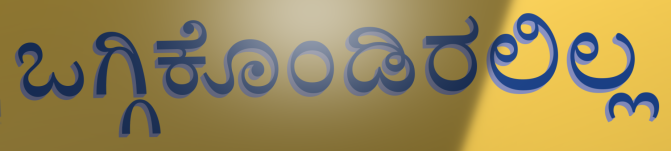
ಒಗ್ಗಿಕೊಂಡಿರಲಿಲ್ಲ